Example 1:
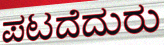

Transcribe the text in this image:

ಪಟದೆದುರು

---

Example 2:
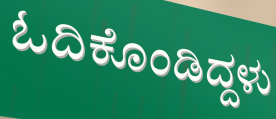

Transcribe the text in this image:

ಓದಿಕೊಂಡಿದ್ದಳು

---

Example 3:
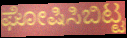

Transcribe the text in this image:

ಘೋಷಿಸಿಬಿಟ್ಟ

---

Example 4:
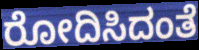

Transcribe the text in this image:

ರೋದಿಸಿದಂತೆ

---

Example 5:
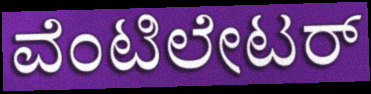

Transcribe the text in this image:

ವೆಂಟಿಲೇಟರ್